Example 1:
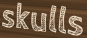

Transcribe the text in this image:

skulls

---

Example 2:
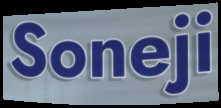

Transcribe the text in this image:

Soneji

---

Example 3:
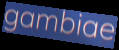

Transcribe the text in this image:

gambiae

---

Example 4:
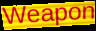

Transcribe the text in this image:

Weapon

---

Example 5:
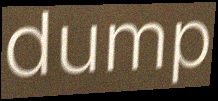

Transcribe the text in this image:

dump